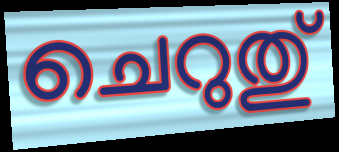
ചെറുതു്